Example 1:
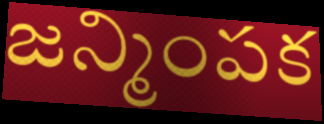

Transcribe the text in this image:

జన్మింపక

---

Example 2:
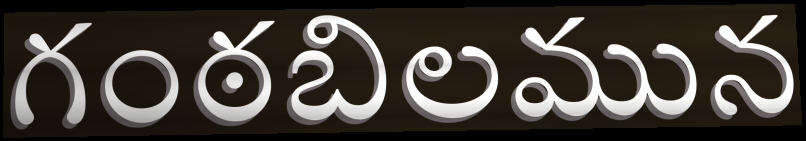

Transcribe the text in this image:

గంఠబిలమున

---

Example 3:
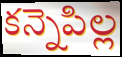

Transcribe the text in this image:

కన్నెపిల్ల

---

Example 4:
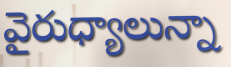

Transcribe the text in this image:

వైరుధ్యాలున్నా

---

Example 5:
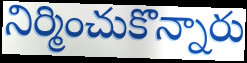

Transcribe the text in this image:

నిర్మించుకొన్నారు